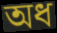
অধ